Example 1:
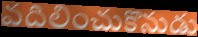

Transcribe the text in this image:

వదిలించుకొనుడు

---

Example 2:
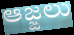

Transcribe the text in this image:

ఆజ్ఙలు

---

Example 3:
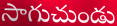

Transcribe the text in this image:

సాగుచుండు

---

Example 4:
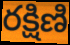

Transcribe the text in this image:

రక్షిణి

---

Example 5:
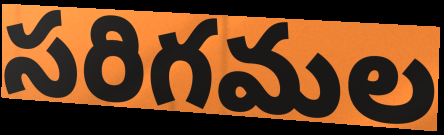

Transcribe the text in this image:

సరిగమల